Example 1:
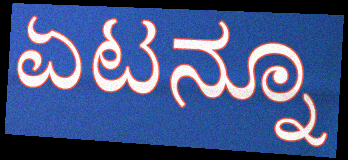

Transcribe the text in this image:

ಏಟನ್ನೂ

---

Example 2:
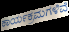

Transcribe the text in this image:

ಕಾರ್ಯಕ್ರಮಗಳಿವೆ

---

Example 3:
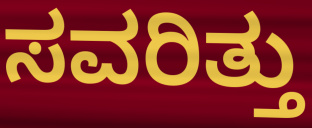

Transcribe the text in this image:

ಸವರಿತ್ತು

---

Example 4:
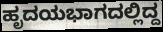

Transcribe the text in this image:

ಹೃದಯಭಾಗದಲ್ಲಿದ್ದ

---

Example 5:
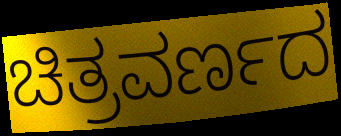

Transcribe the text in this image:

ಚಿತ್ರವರ್ಣದ